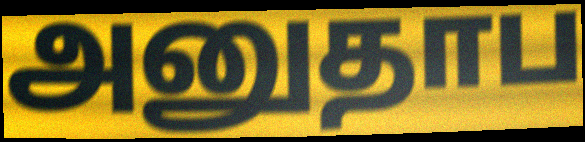
அனுதாப